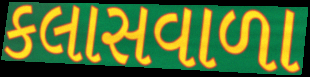
કલાસવાળા